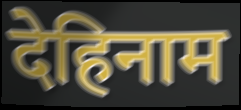
देहिनाम